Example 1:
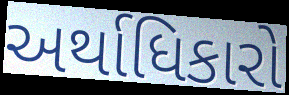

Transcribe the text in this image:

અર્થાધિકારો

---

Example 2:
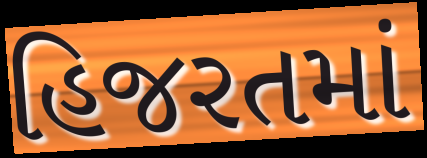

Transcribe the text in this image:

હિજરતમાં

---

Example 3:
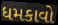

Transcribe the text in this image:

ધમકાવો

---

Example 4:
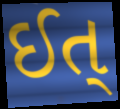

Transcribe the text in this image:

ઈત્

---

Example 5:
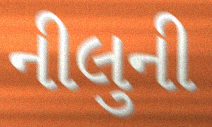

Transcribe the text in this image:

નીલુની